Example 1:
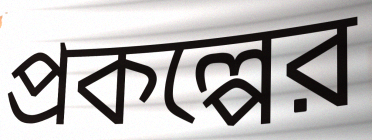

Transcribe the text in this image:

প্রকল্পের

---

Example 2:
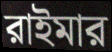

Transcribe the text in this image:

রাইমার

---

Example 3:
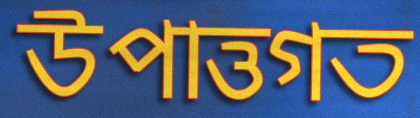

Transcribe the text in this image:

উপাত্তগত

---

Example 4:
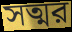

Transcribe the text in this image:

সত্মর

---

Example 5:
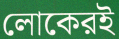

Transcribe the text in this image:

লোকেরই